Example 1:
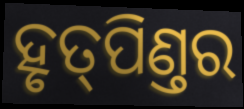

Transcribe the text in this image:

ହୃତ୍‌ପିଣ୍ତର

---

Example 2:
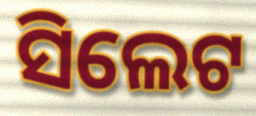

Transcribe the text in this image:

ସିଲେଟ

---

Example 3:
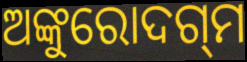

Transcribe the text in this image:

ଅଙ୍କୁରୋଦଗ୍‌ମ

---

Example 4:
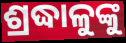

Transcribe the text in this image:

ଶ୍ରଦ୍ଧାଳୁଙ୍କୁ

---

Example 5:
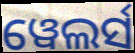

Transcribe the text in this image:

ୱେଲର୍ସ